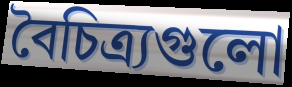
বৈচিত্র্যগুলো